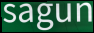
sagun